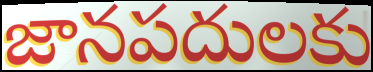
జానపదులకు